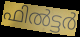
ഫിൽട്ടർ